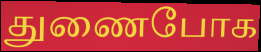
துணைபோக